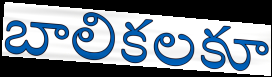
బాలికలకూ